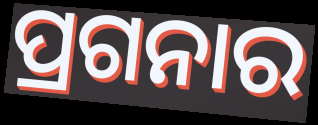
ପ୍ରଗନାର